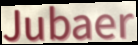
Jubaer